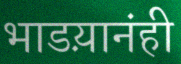
भाडय़ानंही